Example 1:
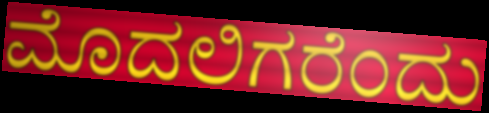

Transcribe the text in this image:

ಮೊದಲಿಗರೆಂದು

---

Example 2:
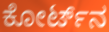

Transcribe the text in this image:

ಕೋರ್ಟ್‍ನ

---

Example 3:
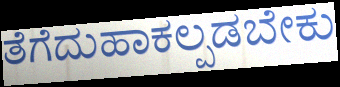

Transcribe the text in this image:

ತೆಗೆದುಹಾಕಲ್ಪಡಬೇಕು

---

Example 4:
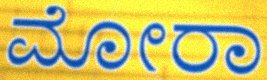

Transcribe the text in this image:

ಮೋರಾ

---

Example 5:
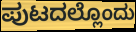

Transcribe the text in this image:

ಪುಟದಲ್ಲೊಂದು